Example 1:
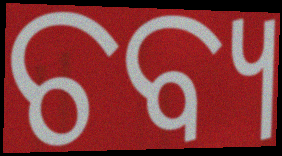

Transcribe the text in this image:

ଚବ୍ୟ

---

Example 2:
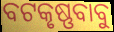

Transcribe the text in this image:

ବଟକୃଷ୍ଣବାବୁ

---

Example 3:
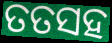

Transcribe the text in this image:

ତତସହ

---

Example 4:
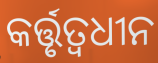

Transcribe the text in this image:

କର୍ତ୍ତୃତ୍ୱଧୀନ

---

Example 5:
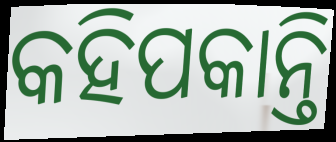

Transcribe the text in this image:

କହିପକାନ୍ତି